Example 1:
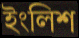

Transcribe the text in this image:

ইংলিশ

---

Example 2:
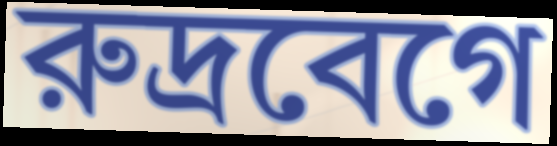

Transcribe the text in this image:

রুদ্রবেগে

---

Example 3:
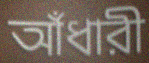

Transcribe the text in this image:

আঁধারী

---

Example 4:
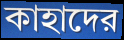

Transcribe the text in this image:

কাহাদের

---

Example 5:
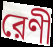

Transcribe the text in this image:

রেণী